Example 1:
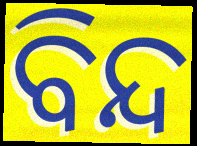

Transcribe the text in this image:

ବିନ୍ଦ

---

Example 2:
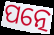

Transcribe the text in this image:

ପତ୍ନେ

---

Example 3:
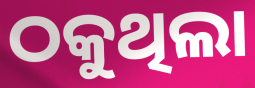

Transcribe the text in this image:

ଠକୁଥିଲା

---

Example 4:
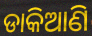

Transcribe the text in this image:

ଡାକିଆଣି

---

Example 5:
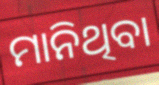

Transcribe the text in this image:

ମାନିଥିବା